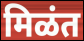
मिळंत